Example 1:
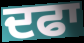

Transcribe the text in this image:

ਦਫਾ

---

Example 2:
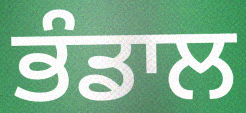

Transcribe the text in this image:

ਭੰਡਾਲ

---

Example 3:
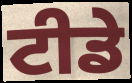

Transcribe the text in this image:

ਟੀਡੇ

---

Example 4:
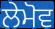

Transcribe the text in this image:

ਲੇਮੋਵ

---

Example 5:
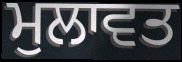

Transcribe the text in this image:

ਮੁਲਾਵਤ